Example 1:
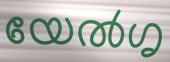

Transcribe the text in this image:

യേൽഗൃ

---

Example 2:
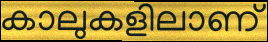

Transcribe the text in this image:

കാലുകളിലാണ്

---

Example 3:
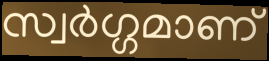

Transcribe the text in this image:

സ്വർഗ്ഗമാണ്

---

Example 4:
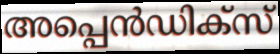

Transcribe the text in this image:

അപ്പെൻഡിക്സ്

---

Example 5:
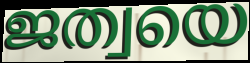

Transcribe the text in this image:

ജത്വയെ